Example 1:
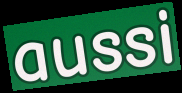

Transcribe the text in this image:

aussi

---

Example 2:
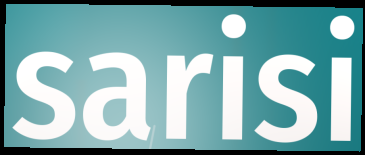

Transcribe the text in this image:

sarisi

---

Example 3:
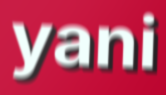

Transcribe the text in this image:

yani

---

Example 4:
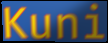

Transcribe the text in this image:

Kuni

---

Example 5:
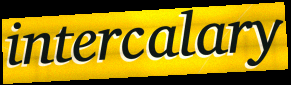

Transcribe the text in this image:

intercalary